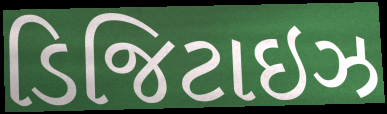
ડિજિટાઇઝ